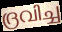
ദ്രവിച്ച